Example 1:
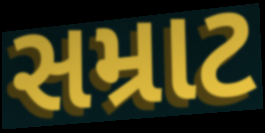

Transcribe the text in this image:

સમ્રાટ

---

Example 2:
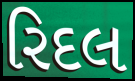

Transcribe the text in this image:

રિદલ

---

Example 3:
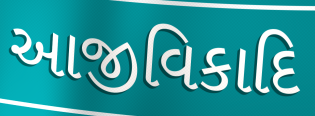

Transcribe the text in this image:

આજીવિકાદિ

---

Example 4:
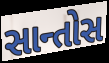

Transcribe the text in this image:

સાન્તોસ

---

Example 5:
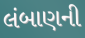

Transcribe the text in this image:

લંબાણની